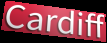
Cardiff